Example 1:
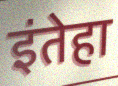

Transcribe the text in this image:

इंतेहा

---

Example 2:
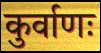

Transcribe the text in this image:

कुर्वाणः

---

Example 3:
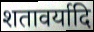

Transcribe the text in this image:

शतावर्यादि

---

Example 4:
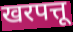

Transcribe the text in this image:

खरपत्तू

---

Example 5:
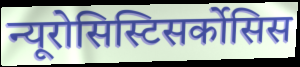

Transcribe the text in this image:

न्यूरोसिस्टिसर्कोसिस